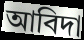
আবিদা